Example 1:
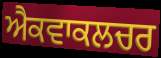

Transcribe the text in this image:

ਐਕਵਾਕਲਚਰ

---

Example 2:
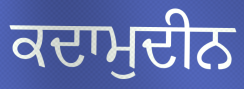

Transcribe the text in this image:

ਕਦਾਮੁਦੀਨ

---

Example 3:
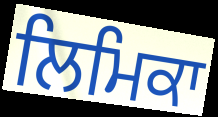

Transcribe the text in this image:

ਲਿਮਿਕਾ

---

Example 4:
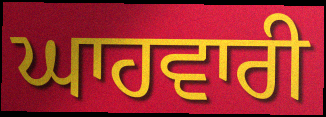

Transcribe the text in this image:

ਘਾਹਵਾਰੀ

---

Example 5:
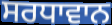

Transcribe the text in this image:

ਸਰਧਾਵਾਨ